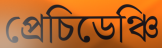
প্ৰেচিডেঞ্চি